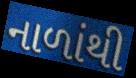
નાળાંથી